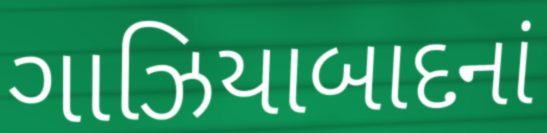
ગાઝિયાબાદનાં